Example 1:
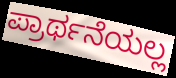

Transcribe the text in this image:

ಪ್ರಾರ್ಥನೆಯಲ್ಲ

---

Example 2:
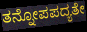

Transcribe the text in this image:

ತನ್ನೋಪಪದ್ಯತೇ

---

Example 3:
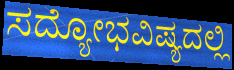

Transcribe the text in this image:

ಸದ್ಯೋಭವಿಷ್ಯದಲ್ಲಿ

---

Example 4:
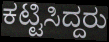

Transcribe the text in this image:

ಕಟ್ಟಿಸಿದ್ದರು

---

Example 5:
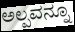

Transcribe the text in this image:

ಅಲ್ಪವನ್ನೂ